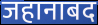
जहानाबद